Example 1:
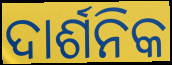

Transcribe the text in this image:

ଦାର୍ଶନିକ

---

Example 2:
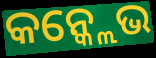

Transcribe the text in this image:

କନ୍କ୍ଲେଭ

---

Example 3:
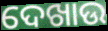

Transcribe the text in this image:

ଦେଖାଉ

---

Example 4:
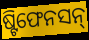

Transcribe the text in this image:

ଷ୍ଟିଫେନସନ୍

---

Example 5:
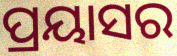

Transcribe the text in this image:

ପ୍ରୟାସର